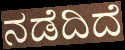
ನಡೆದಿದೆ